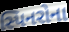
સ્પિનરોના